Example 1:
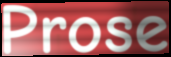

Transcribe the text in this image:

Prose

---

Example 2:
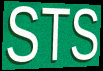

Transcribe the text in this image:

STS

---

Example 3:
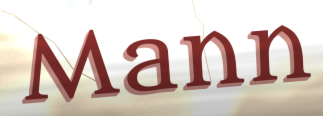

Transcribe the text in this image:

Mann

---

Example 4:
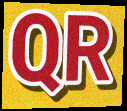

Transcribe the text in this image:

QR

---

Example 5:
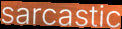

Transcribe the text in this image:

sarcastic